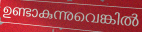
ഉണ്ടാകുന്നുവെങ്കിൽ